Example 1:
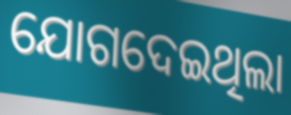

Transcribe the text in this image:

ଯୋଗଦେଇଥିଲା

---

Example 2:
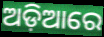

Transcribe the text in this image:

ଅଡ଼ିଆରେ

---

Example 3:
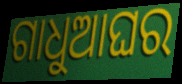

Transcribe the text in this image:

ଗାଧୁଆଘର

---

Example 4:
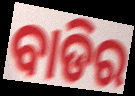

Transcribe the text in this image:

ବାଡିର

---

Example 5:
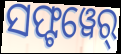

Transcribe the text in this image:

ସଫ୍ଟୱେର୍